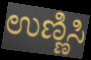
ಉಣ್ಣಿಸಿ